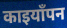
काइयाँपन